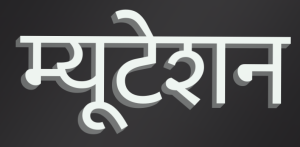
म्यूटेशन